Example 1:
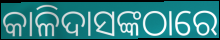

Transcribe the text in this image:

କାଳିଦାସଙ୍କଠାରେ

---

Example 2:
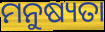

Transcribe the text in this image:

ମନୁଷ୍ୟତା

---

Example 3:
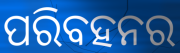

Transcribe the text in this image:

ପରିବହନର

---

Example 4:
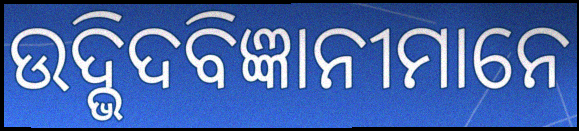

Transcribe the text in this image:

ଉଦ୍ଭିଦବିଜ୍ଞାନୀମାନେ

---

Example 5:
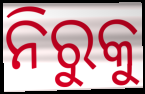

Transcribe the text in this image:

ନିରୁକୁ